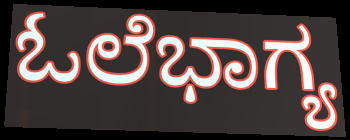
ಓಲೆಭಾಗ್ಯ